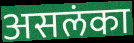
असलंका